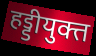
हड्डीयुक्त